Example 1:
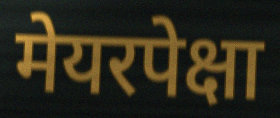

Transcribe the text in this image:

मेयरपेक्षा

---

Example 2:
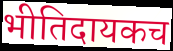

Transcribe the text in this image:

भीतिदायकच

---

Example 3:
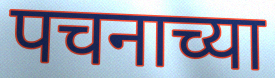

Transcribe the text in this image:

पचनाच्या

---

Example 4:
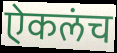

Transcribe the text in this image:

ऐकलंच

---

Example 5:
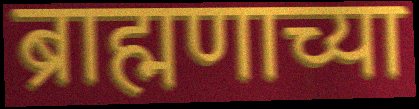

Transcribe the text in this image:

ब्राह्मणाच्या